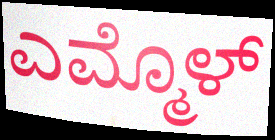
ಎಮ್ಮೊಳ್